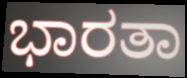
ಭಾರತಾ